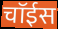
चॉईस